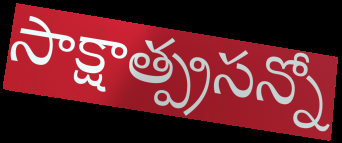
సాక్షాత్ప్రసన్నో